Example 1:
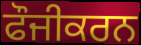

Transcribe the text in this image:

ਫੌਜੀਕਰਨ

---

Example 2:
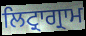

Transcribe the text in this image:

ਲਿਟ੍ਰਾਗ੍ਰਾਮ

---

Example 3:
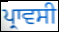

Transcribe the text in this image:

ਪ੍ਰਾਵਸੀ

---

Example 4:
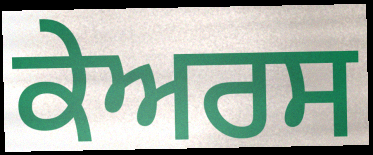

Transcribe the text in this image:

ਕੇਅਰਸ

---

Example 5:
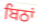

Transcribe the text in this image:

ਬਿਠਾਂ